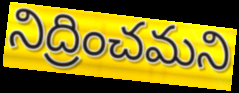
నిద్రించమని